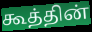
கூத்தின்